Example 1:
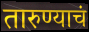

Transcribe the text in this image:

तारुण्याचं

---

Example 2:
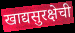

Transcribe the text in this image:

खाद्यसुरक्षेची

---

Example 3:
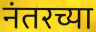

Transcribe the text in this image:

नंतरच्या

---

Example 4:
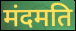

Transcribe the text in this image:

मंदमति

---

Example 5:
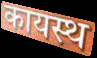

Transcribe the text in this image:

कायस्थ